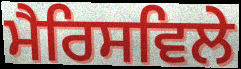
ਮੈਰਿਸਵਿਲੇ